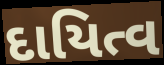
દાયિત્વ